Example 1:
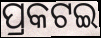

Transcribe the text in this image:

ପ୍ରକଟଇ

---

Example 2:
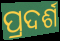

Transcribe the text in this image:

ପ୍ରଦର୍ଶ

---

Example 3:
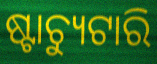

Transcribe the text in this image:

ଷ୍ଟାଚ୍ୟୁଟାରି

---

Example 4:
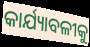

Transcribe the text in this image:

କାର୍ଯ୍ୟାବଳୀକୁ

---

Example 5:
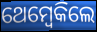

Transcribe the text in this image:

ଥେମ୍ବେକିଲେ